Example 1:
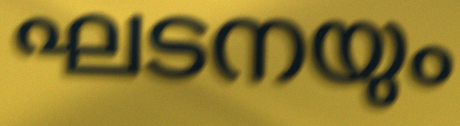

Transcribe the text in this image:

ഘടനയും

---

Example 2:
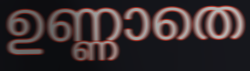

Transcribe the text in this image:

ഉണ്ണാതെ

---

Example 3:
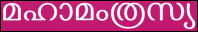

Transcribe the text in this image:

മഹാമംത്രസ്യ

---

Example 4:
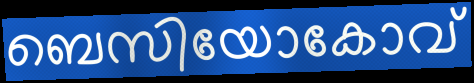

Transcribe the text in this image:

ബെസിയോകോവ്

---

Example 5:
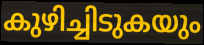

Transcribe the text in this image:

കുഴിച്ചിടുകയും